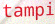
tampi